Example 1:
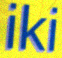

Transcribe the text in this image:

iki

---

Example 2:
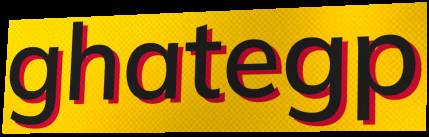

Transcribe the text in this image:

ghategp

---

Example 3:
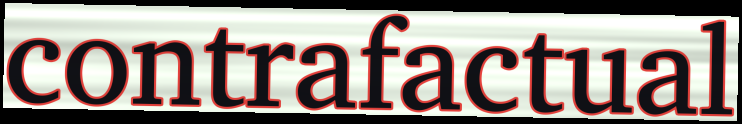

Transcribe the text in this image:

contrafactual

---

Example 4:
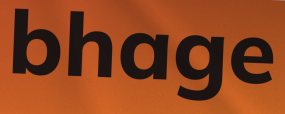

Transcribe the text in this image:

bhage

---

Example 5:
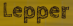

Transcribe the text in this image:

Lepper